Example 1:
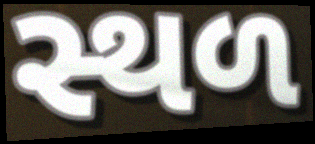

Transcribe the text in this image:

સ્થળ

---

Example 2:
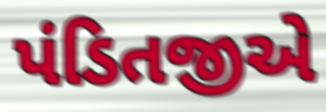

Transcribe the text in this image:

પંડિતજીએ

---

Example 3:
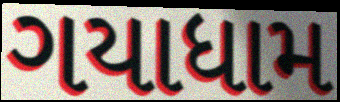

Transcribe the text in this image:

ગયાધામ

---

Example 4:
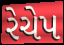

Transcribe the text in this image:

રેચેપ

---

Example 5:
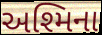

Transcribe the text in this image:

અશ્મિના